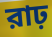
রাঢ়